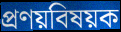
প্রণয়বিষয়ক